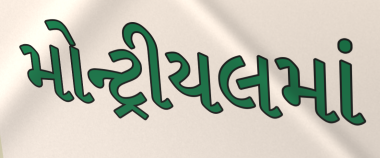
મોન્ટ્રીયલમાં